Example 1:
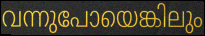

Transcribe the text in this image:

വന്നുപോയെങ്കിലും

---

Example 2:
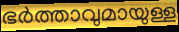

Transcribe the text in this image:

ഭർത്താവുമായുള്ള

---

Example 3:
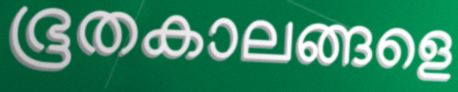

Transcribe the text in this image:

ഭൂതകാലങ്ങളെ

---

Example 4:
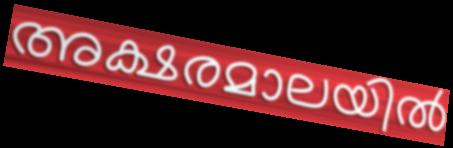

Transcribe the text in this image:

അക്ഷരമാലയിൽ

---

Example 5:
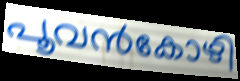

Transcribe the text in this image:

പൂവൻകോഴി